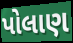
પોલાણ